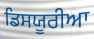
ਡਿਸਯੂਰੀਆ